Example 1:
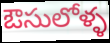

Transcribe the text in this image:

ఔసులోళ్ళ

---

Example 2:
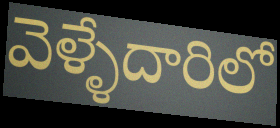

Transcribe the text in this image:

వెళ్ళేదారిలో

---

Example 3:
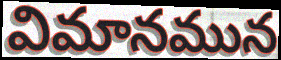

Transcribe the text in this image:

విమానమున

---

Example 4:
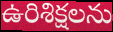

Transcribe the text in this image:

ఉరిశిక్షలను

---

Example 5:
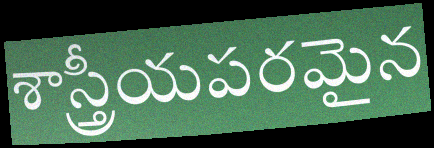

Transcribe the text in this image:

శాస్త్రీయపరమైన